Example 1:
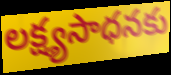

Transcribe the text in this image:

లక్ష్యసాధనకు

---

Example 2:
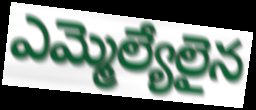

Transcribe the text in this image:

ఎమ్మెల్యేలైన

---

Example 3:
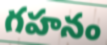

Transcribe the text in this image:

గహనం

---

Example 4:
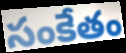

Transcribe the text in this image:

సంకేతం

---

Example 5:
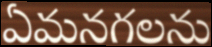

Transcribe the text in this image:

ఏమనగలను